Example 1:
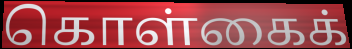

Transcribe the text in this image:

கொள்கைக்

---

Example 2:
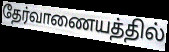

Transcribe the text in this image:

தேர்வாணையத்தில்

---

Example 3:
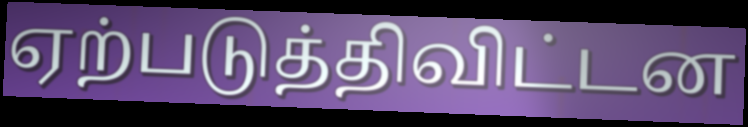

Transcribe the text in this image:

ஏற்படுத்திவிட்டன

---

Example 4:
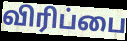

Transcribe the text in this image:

விரிப்பை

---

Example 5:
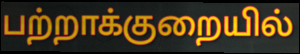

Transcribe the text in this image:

பற்றாக்குறையில்